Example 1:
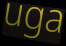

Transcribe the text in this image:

uga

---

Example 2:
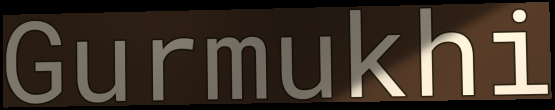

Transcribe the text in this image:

Gurmukhi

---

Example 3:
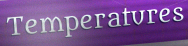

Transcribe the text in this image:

Temperatures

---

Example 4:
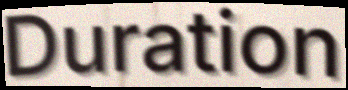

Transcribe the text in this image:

Duration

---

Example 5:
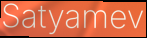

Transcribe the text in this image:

Satyamev